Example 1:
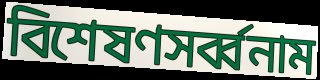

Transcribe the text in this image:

বিশেষণসৰ্ব্বনাম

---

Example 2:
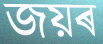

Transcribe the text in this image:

জয়ৰ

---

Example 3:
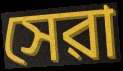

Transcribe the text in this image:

সেৱা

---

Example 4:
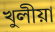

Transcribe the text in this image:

খুলীয়া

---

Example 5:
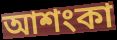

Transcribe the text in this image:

আশংকা